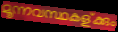
മൂന്നവസ്ഥകള്ക്കും